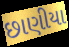
છાણીયા